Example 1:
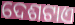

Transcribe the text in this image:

ଦେଶଟାଏ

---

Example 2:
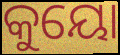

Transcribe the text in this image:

କୁୟୋ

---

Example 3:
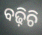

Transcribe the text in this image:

ବଢ଼ିଚି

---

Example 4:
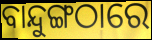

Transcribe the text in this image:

ବାନ୍ଦୁଙ୍ଗଠାରେ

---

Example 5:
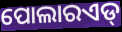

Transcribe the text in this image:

ପୋଲାରଏଡ୍